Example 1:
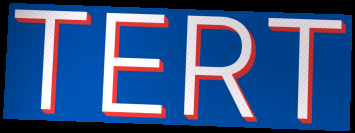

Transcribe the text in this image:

TERT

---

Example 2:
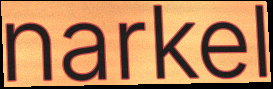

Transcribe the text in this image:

narkel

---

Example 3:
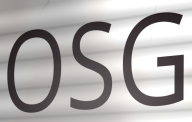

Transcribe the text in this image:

OSG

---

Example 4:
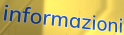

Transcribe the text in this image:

informazioni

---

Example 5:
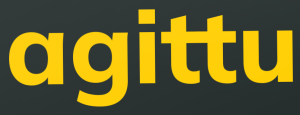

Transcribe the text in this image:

agittu